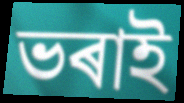
ভৰাই